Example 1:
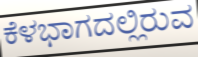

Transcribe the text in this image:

ಕೆಳಭಾಗದಲ್ಲಿರುವ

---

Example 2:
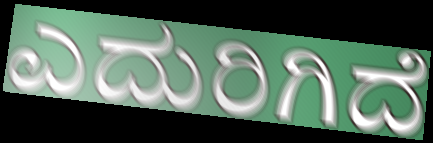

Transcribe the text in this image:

ಎದುರಿಗಿದೆ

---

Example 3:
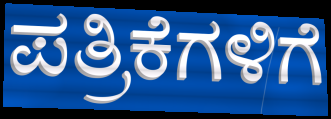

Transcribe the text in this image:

ಪತ್ರಿಕೆಗಳಿಗೆ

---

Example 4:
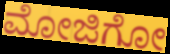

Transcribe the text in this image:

ಮೋಜಿಗೋ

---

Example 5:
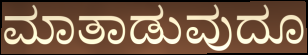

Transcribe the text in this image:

ಮಾತಾಡುವುದೂ